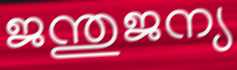
ജന്തുജന്യ